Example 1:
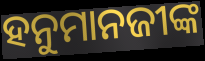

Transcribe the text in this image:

ହନୁମାନଜୀଙ୍କ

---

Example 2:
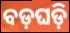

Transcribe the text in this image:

ବଡ଼ଘଡ଼ି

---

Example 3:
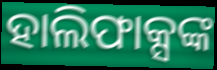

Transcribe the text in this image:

ହାଲିଫାକ୍ସଙ୍କ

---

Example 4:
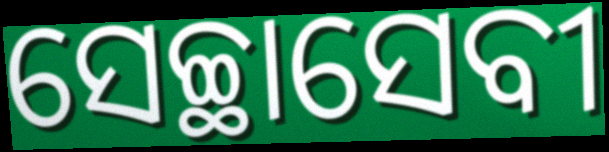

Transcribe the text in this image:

ସେଚ୍ଛାସେବୀ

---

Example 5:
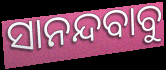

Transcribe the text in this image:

ସାନନ୍ଦବାବୁ